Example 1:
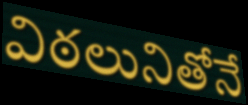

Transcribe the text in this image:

విఠలునితోనే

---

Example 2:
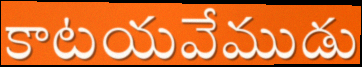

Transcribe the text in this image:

కాటయవేముడు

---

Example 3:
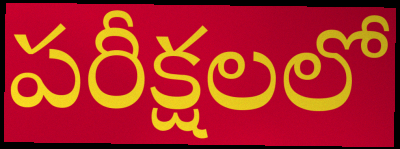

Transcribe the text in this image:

పరీక్షలలో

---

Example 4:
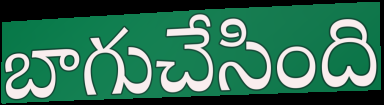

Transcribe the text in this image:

బాగుచేసింది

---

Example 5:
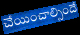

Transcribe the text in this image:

చేయించాల్సిందే